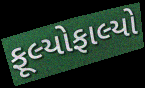
ફૂલ્યોફાલ્યો